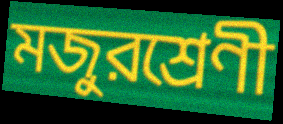
মজুরশ্রেণী